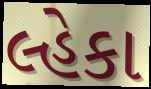
લ્હેકા